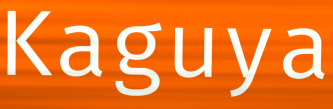
Kaguya